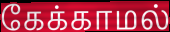
கேக்காமல்